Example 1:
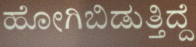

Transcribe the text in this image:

ಹೋಗಿಬಿಡುತ್ತಿದ್ದೆ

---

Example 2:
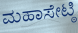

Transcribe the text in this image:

ಮಹಾಸೇಟ್ಠಿ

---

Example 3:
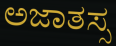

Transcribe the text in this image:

ಅಜಾತಸ್ಸ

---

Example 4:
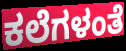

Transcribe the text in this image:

ಕಲೆಗಳಂತೆ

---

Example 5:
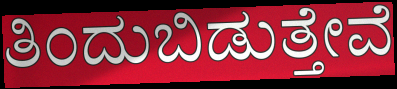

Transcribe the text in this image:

ತಿಂದುಬಿಡುತ್ತೇವೆ